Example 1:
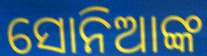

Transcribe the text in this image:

ସୋନିଆଙ୍କ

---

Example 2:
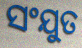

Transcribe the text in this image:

ସଂଯୁତ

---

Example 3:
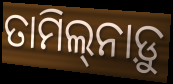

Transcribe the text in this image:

ତାମିଲ୍‌ନାଡ଼ୁ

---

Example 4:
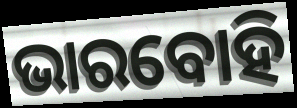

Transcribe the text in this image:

ଭାରବୋହି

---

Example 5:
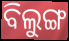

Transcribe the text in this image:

ବିଲୁଙ୍ଗ